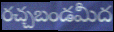
రచ్చబండమీద